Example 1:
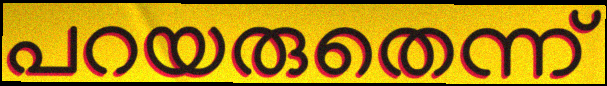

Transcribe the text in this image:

പറയരുതെന്ന്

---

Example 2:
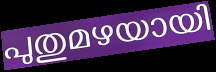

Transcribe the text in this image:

പുതുമഴയായി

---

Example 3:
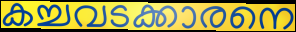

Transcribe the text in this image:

കച്ചവടക്കാരനെ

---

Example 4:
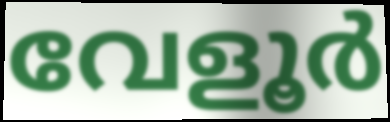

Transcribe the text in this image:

വേളൂർ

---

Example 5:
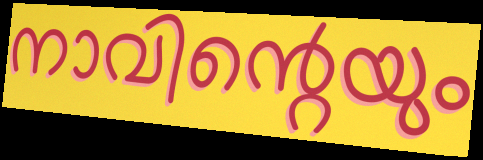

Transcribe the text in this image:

നാവിന്റെയും